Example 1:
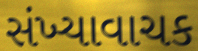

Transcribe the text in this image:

સંખ્યાવાચક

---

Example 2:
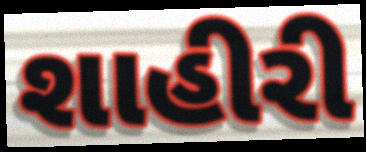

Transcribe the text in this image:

શાહીરી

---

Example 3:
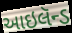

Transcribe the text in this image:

આઇલૅન્ડ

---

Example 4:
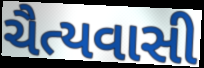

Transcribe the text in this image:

ચૈત્યવાસી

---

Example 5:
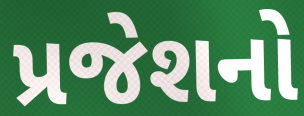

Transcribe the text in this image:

પ્રજેશનો